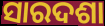
ସାରଦଶା